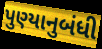
પુણ્યાનુબંધી